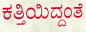
ಕತ್ತಿಯಿದ್ದಂತೆ